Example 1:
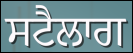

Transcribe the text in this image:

ਸਟੈਲਾਗ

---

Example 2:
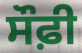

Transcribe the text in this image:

ਸੌਫ਼ੀ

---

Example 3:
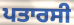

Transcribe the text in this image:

ਪਤਾਰਸੀ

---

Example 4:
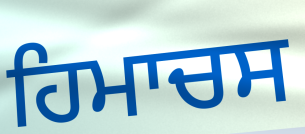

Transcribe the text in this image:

ਹਿਮਾਚਸ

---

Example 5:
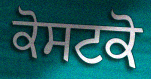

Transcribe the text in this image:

ਕੋਸਟਕੋ